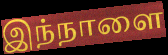
இந்நாளை